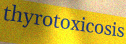
thyrotoxicosis